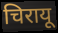
चिरायू